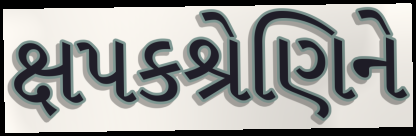
ક્ષપકશ્રેણિને